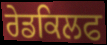
ਰੇਡਕਿਲਫ